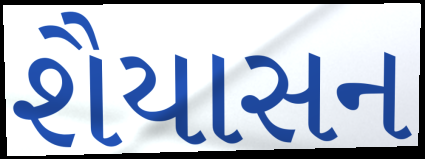
શૈયાસન